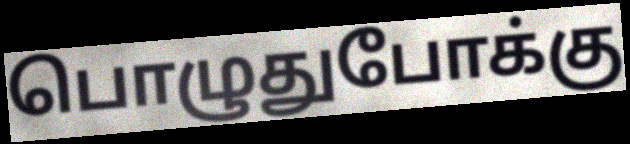
பொழுதுபோக்கு